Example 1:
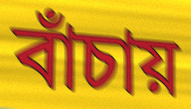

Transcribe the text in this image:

বাঁচায়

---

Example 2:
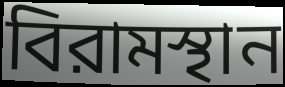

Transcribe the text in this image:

বিরামস্থান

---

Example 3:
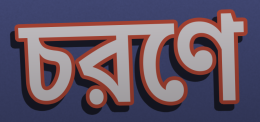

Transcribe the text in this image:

চরণে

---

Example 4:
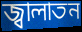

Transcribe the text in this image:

জ্বালাতন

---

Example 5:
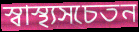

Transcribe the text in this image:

স্বাস্থ্যসচেতন